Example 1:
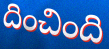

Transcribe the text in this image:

దించింది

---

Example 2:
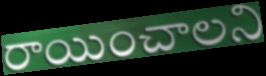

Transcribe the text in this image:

రాయించాలని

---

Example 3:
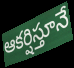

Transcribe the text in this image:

ఆకర్షిస్తూనే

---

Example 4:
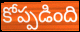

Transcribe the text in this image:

కోప్పడింది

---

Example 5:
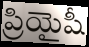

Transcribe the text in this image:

ప్రియైషీ